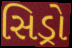
સિડ્રો